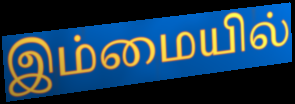
இம்மையில்